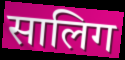
सालिग